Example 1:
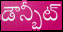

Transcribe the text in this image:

డౌన్బీట్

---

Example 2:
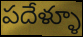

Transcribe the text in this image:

పదేళ్ళూ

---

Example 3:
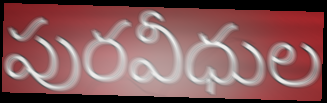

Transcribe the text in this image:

పురవీధుల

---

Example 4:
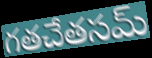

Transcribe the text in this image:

గతచేతసమ్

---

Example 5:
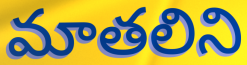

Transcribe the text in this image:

మాతలిని